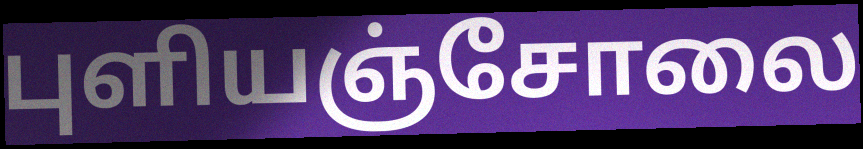
புளியஞ்சோலை